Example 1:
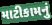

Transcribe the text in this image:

માટીકામનું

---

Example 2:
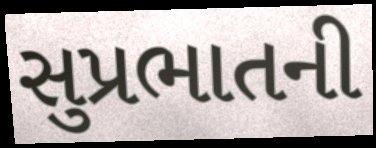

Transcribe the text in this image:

સુપ્રભાતની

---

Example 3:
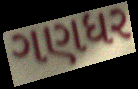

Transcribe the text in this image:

ગણધર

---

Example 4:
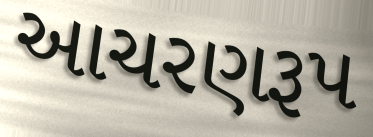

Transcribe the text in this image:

આચરણરૂપ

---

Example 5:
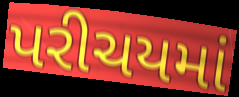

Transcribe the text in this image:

પરીચયમાં